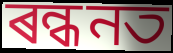
ৰন্ধনত